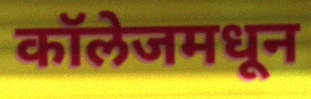
कॉलेजमधून